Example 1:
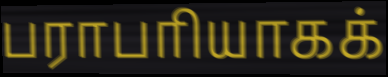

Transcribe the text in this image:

பராபரியாகக்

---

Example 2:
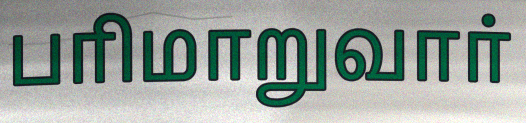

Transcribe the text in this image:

பரிமாறுவார்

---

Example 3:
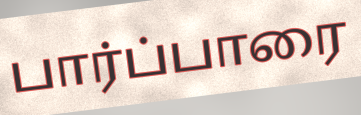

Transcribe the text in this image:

பார்ப்பாரை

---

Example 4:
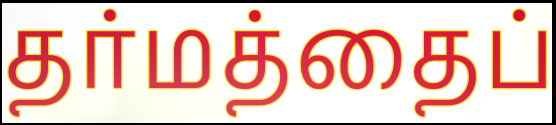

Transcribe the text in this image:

தர்மத்தைப்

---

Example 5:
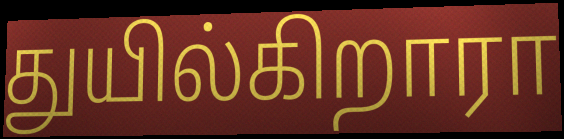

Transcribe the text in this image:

துயில்கிறாரா